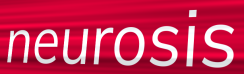
neurosis